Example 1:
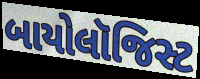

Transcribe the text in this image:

બાયોલૉજિસ્ટ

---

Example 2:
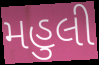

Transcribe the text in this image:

મહુલી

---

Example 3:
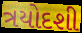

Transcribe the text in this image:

ત્રયોદશી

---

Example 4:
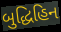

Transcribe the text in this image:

બુદ્ધિહિન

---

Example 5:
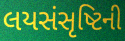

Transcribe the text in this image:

લયસંસૃષ્ટિની